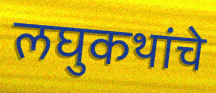
लघुकथांचे